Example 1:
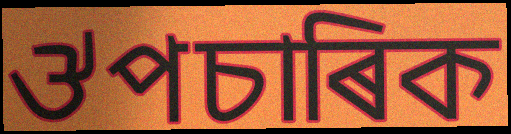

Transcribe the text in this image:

ঔপচাৰিক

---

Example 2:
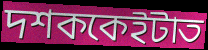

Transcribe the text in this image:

দশককেইটাত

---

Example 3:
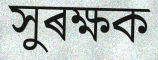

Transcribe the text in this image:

সুৰক্ষক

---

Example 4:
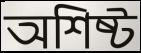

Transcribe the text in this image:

অশিষ্ট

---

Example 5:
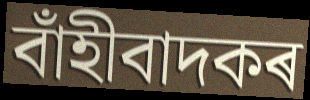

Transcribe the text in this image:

বাঁহীবাদকৰ